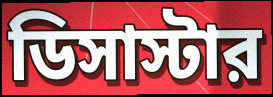
ডিসাস্টার